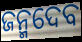
ଜନ୍ମଦେବ